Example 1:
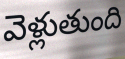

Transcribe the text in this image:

వెళ్లుతుంది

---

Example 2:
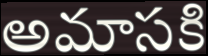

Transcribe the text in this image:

అమాసకి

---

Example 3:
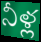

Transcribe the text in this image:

నీళ్ల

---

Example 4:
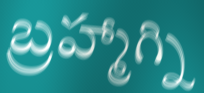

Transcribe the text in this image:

బ్రహ్మాగ్ని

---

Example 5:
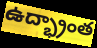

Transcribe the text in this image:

ఉద్భ్రాంత